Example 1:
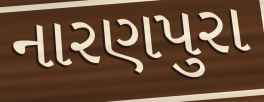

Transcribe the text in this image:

નારણપુરા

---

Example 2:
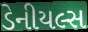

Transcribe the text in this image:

ડેનીયલ્સ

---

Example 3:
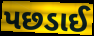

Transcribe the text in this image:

પછડાઈ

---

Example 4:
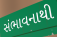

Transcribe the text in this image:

સંભાવનાથી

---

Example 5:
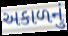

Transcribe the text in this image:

અકાળનું